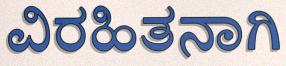
ವಿರಹಿತನಾಗಿ